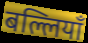
बल्लियाँ